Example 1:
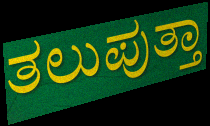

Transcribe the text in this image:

ತಲುಪುತ್ತಾ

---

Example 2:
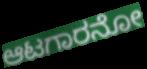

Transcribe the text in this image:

ಆಟಗಾರನೋ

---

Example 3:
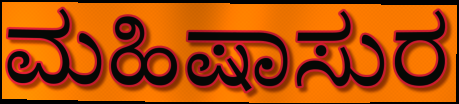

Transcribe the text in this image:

ಮಹಿಷಾಸುರ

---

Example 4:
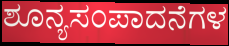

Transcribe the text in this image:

ಶೂನ್ಯಸಂಪಾದನೆಗಳ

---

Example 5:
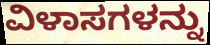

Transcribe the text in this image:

ವಿಳಾಸಗಳನ್ನು